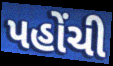
પહોંચી